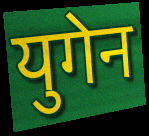
युगेन